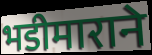
भडीमाराने